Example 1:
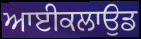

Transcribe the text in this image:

ਆਈਕਲਾਉਡ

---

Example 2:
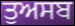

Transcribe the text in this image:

ਤੁਅਸਬ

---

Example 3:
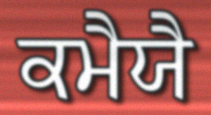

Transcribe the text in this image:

ਕਮੈਯੈ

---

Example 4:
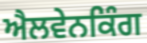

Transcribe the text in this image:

ਐਲਵੇਨਕਿੰਗ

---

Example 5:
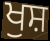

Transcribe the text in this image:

ਖੁਸ਼